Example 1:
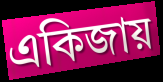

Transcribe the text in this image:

একিজায়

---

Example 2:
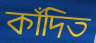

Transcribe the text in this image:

কাঁদিত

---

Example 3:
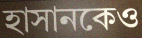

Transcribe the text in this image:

হাসানকেও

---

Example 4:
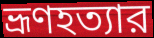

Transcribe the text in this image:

ভ্রূণহত্যার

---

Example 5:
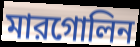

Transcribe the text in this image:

মারগোলিন